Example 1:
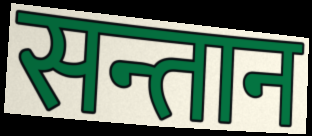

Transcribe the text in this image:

सन्तान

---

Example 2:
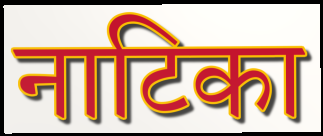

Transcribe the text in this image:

नाटिका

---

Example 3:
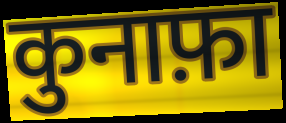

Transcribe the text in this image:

कुनाफ़ा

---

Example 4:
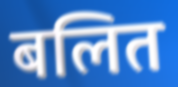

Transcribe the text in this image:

बलित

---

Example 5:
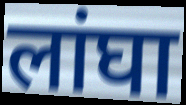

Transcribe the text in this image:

लांघा